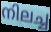
നിലച്ച